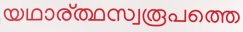
യഥാര്ത്ഥസ്വരൂപത്തെ